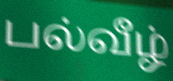
பல்வீழ்